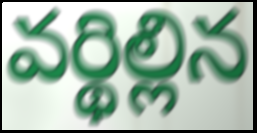
వర్థిల్లిన